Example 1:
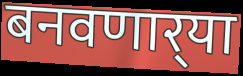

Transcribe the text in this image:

बनवणार्‍या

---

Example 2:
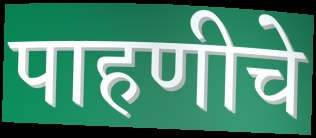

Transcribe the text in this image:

पाहणीचे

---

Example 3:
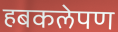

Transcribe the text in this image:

हबकलेपण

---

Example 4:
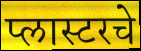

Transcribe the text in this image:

प्लास्टरचे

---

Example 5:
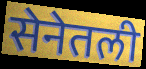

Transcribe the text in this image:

सेनेतली